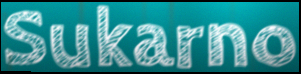
Sukarno